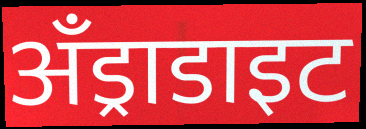
अँड्राडाइट